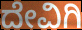
ದೇವಿಗಿ